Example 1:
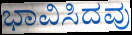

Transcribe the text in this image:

ಭಾವಿಸಿದವು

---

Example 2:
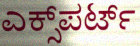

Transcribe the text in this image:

ಎಕ್ಸ್‌ಪರ್ಟ್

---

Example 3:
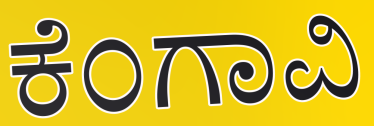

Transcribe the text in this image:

ಕೆಂಗಾವಿ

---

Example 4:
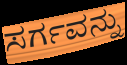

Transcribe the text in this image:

ಸರ್ಗವನ್ನು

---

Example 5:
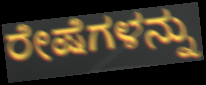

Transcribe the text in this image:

ರೇಷೆಗಳನ್ನು